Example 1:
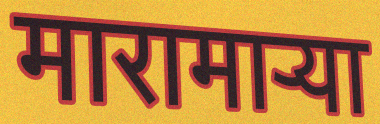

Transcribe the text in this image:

मारामाऱ्या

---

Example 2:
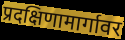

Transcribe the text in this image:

प्रदक्षिणामार्गावर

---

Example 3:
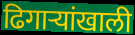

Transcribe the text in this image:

ढिगाऱ्यांखाली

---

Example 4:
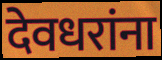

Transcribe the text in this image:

देवधरांना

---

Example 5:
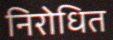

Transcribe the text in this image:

निरोधित